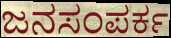
ಜನಸಂಪರ್ಕ